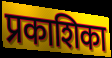
प्रकाशिका